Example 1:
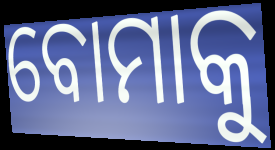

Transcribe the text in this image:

ବୋମାକୁ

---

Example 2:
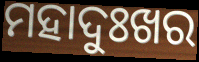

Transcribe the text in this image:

ମହାଦୁଃଖର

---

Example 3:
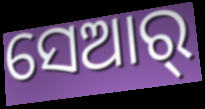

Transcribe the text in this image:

ସେଆର୍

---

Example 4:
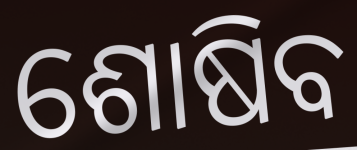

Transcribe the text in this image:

ଶୋଷିବ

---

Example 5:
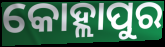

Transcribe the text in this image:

କୋହ୍ଲାପୁର